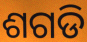
ଶଗଡି